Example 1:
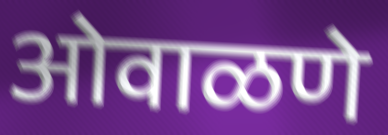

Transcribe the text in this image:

ओवाळणे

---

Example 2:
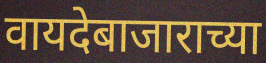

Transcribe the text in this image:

वायदेबाजाराच्या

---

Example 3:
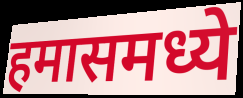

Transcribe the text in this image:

हमासमध्ये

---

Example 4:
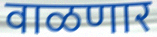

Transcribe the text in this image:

वाळणार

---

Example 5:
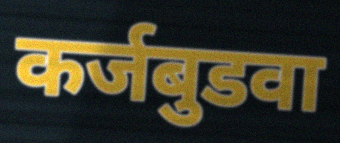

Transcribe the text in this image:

कर्जबुडवा